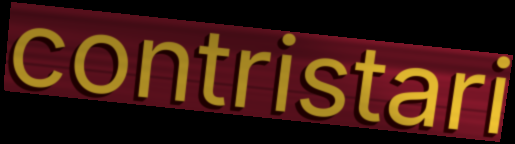
contristari